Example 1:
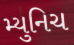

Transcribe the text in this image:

મ્યુનિચ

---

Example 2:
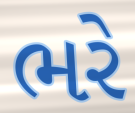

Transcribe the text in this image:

ભરે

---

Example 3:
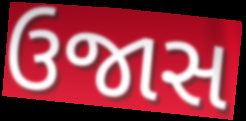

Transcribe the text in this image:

ઉજાસ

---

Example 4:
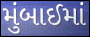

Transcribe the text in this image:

મુંબાઈમાં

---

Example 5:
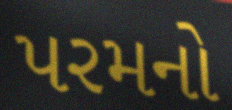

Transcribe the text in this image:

પરમનો